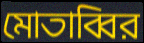
মোতাব্বির